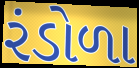
રંડોળા